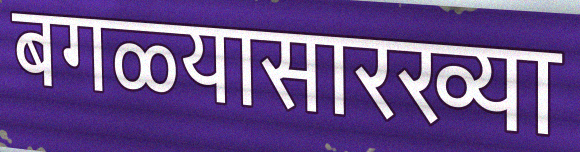
बगळ्यासारख्या